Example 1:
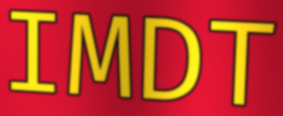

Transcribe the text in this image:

IMDT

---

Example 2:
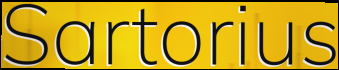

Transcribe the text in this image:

Sartorius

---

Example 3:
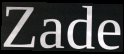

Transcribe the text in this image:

Zade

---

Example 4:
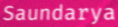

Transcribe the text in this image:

Saundarya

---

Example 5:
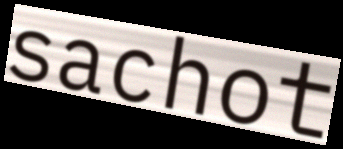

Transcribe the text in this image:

sachot